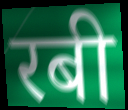
रबी